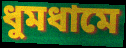
ধুমধামে